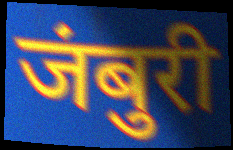
जंबुरी